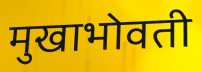
मुखाभोवती